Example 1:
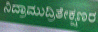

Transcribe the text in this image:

ನಿದ್ರಾಮುದ್ರಿತೇಕ್ಷಣರ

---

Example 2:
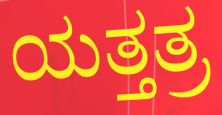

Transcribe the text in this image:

ಯತ್ತತ್ರ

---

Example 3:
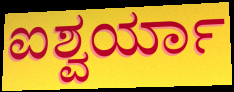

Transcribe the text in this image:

ಐಶ್ವರ್ಯಾ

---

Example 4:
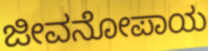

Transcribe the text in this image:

ಜೀವನೋಪಾಯ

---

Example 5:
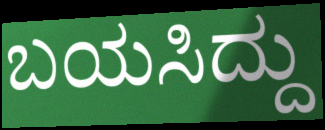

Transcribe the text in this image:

ಬಯಸಿದ್ದು